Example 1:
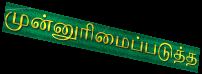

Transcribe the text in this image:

முன்னுரிமைப்படுத்த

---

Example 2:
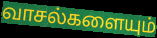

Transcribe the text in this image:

வாசல்களையும்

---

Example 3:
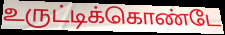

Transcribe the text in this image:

உருட்டிக்கொண்டே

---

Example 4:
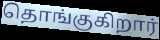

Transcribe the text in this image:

தொங்குகிறார்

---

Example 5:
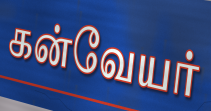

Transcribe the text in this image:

கன்வேயர்